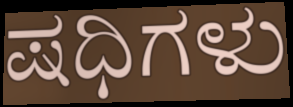
ಷಧಿಗಳು